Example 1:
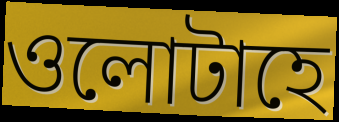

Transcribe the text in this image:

ওলোটাহে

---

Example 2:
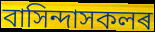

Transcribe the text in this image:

বাসিন্দাসকলৰ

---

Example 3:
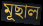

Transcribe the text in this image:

মূছাল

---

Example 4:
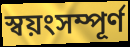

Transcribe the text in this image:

স্বয়ংসম্পূৰ্ণ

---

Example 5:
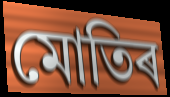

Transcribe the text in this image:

মোতিৰ